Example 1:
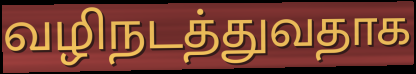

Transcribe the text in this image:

வழிநடத்துவதாக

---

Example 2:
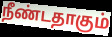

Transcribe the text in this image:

நீண்டதாகும்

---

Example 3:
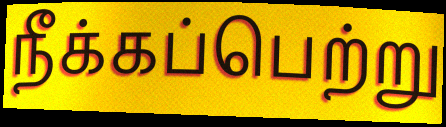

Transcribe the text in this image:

நீக்கப்பெற்று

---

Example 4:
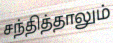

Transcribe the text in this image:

சந்தித்தாலும்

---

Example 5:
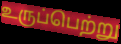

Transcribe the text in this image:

உருப்பெற்று